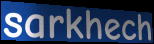
sarkhech